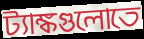
ট্যাঙ্কগুলোতে